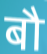
बौ